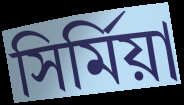
সির্মিয়া